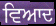
ਵਿਆਦ